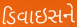
ડિવાઇસને